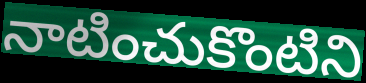
నాటించుకొంటిని